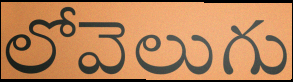
లోవెలుగు